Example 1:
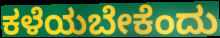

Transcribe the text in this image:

ಕಳೆಯಬೇಕೆಂದು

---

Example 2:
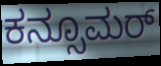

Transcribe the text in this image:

ಕನ್ಸೂಮರ್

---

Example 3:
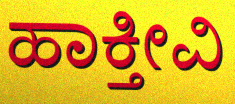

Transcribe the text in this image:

ಹಾಕ್ತೀವಿ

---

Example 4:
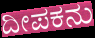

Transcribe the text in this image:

ದೀಪಕನು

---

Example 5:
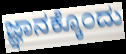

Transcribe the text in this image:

ಜ್ಞಾನಕ್ಕೊಂದು